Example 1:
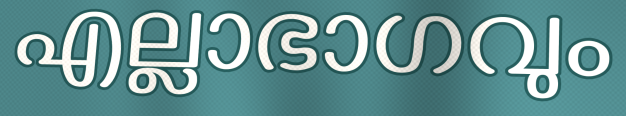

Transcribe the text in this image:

എല്ലാഭാഗവും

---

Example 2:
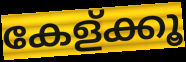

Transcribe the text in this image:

കേള്ക്കൂ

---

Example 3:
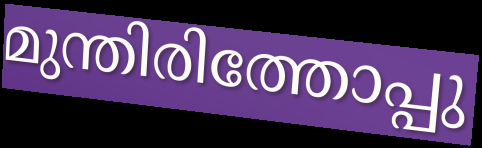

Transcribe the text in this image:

മുന്തിരിത്തോപ്പു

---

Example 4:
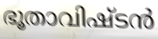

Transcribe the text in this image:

ഭൂതാവിഷ്ടൻ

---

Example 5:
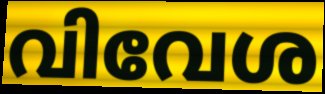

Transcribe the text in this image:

വിവേശ